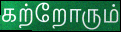
கற்றோரும்